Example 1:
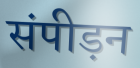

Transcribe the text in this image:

संपीड़न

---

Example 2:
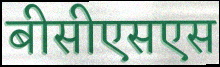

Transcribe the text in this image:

बीसीएसएस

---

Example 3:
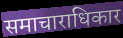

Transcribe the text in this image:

समाचाराधिकार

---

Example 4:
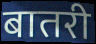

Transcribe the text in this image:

बातरी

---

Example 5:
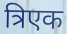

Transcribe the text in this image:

त्रिएक